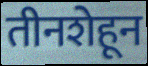
तीनशेहून